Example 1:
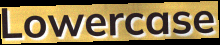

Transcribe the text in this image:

Lowercase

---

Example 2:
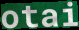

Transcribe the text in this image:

otai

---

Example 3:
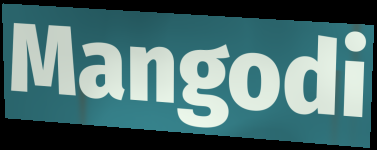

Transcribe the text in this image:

Mangodi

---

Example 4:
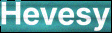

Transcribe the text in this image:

Hevesy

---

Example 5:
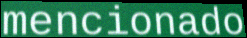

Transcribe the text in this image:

mencionado